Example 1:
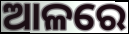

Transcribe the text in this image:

ଆଳରେ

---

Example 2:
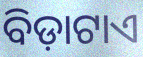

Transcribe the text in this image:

ବିଡ଼ାଟାଏ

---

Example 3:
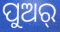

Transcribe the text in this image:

ପୁଅର୍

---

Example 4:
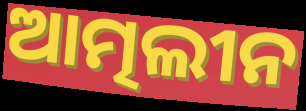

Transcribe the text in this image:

ଆତ୍ମଲୀନ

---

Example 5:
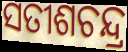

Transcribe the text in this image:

ସତୀଶଚନ୍ଦ୍ର